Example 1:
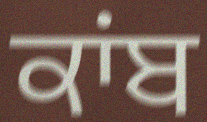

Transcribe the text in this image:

ਕਾਂਬ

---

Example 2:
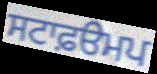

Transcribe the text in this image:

ਸਟਾਫ਼ੳਮਪ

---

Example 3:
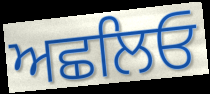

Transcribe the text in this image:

ਅਛਲਿਓ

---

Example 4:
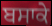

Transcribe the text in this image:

ਬਸਾਕੇ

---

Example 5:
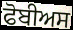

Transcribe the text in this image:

ਫੋਬੀਅਸ